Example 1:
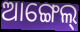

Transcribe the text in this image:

ଆଙ୍ଗେଲ୍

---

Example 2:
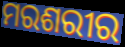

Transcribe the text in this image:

ମରଶରୀର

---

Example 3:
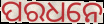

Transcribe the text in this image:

ପରଧନେ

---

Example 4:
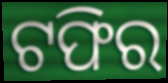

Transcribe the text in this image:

ଟଫିର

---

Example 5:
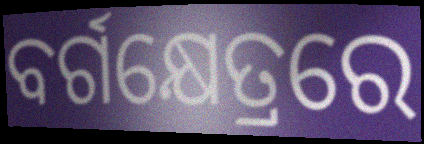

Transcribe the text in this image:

ବର୍ଗକ୍ଷେତ୍ରରେ